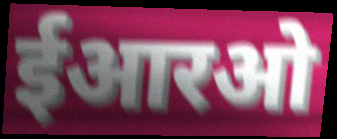
ईआरओ